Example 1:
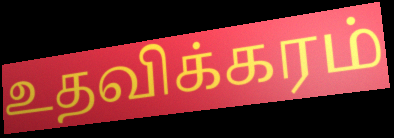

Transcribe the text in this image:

உதவிக்கரம்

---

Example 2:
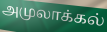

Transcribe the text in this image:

அமுலாக்கல்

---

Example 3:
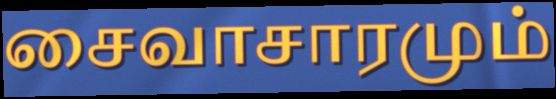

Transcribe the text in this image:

சைவாசாரமும்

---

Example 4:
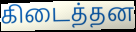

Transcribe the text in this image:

கிடைத்தன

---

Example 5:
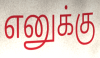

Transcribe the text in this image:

எனுக்கு